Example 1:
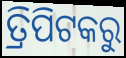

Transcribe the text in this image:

ତ୍ରିପିଟକରୁ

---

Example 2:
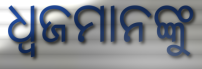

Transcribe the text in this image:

ଧ୍ୱଜମାନଙ୍କୁ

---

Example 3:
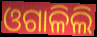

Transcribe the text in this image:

ଓଗାଳିଲି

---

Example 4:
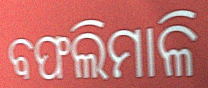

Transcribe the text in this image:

ବଫଲିମାଳି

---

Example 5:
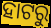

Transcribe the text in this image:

ହାଟରୁ